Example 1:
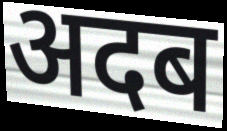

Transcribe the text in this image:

अदब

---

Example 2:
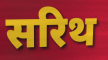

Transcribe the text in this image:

सरिथ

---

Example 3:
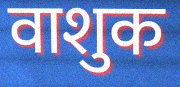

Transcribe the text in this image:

वाशुक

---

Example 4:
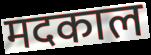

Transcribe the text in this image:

मदकाल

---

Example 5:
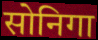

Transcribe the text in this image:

सोनिगा